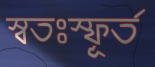
স্বতঃস্ফূৰ্ত